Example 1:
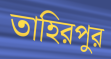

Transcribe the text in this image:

তাহিরপুর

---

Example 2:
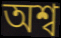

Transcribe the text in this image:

অশ্ব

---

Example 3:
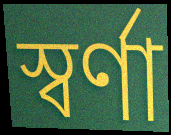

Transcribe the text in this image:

স্বর্ণা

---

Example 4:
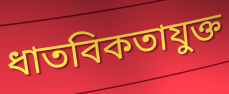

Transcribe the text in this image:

ধাতবিকতাযুক্ত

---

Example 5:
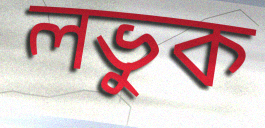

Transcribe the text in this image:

লভুক